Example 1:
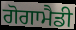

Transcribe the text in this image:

ਗੋਗਾਮੈਡੀ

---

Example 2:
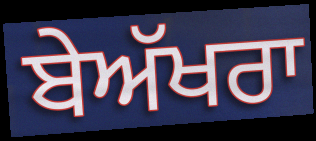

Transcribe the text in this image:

ਬੇਅੱਖਰਾ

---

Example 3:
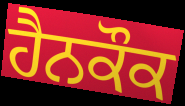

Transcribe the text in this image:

ਹੈਨਕੌਕ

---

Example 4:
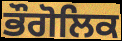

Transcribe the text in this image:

ਭੌਗੋਲਿਕ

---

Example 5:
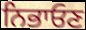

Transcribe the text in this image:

ਨਿਭਾਓਣ